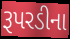
રૂપરડીના